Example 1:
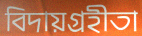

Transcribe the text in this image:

বিদায়গ্রহীতা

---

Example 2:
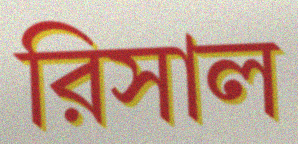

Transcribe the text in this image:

রিসাল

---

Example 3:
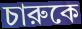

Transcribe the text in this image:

চারুকে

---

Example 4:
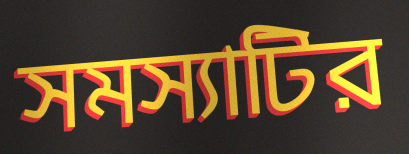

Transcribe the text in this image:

সমস্যাটির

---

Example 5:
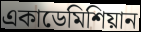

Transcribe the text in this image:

একাডেমিশিয়ান